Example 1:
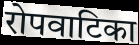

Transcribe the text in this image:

रोपवाटिका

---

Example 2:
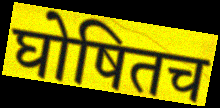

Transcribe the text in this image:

घोषितच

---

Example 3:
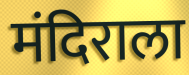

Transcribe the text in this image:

मंदिराला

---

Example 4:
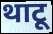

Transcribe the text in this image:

थाटू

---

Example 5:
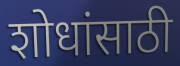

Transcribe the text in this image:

शोधांसाठी